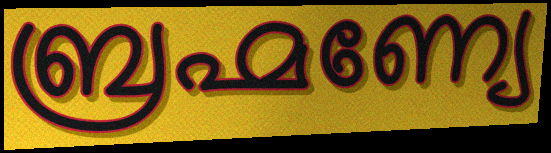
ബ്രഹ്മണ്യേ